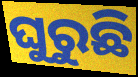
ଘୁରୁଛି